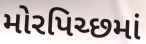
મોરપિચ્છમાં